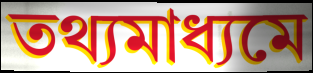
তথ্যমাধ্যমে